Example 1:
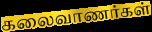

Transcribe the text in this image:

கலைவாணர்கள்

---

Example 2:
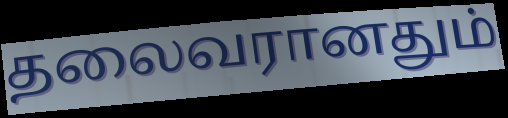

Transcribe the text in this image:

தலைவரானதும்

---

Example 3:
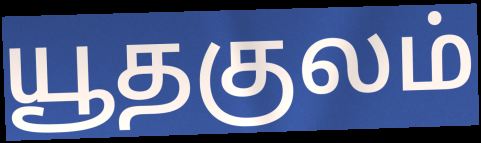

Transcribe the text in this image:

யூதகுலம்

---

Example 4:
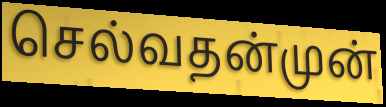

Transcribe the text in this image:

செல்வதன்முன்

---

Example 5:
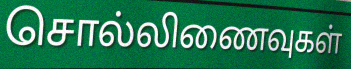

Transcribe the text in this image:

சொல்லிணைவுகள்